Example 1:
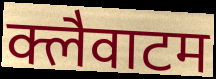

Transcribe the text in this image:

क्लैवाटम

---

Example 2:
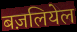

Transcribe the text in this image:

बज़लियेल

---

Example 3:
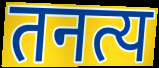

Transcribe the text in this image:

तनत्य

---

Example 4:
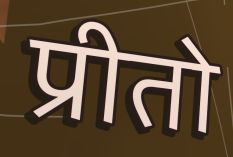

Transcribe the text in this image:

प्रीतो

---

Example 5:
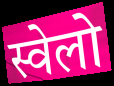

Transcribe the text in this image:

स्वेलो